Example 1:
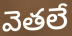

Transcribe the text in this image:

వెతలే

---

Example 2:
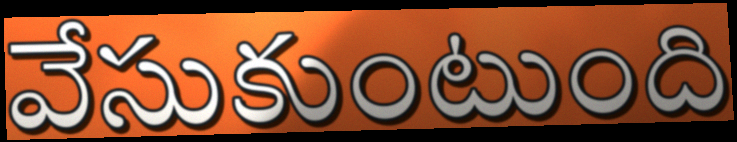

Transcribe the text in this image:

వేసుకుంటుంది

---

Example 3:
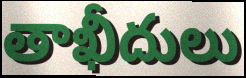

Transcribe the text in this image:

తాఖీదులు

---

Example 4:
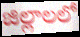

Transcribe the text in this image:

జిల్లాలలో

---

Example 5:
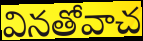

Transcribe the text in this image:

వినతోవాచ